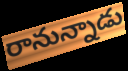
రానున్నాడు